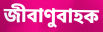
জীবাণুবাহক